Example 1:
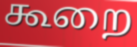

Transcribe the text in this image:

கூறை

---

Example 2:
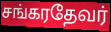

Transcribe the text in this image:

சங்கரதேவர்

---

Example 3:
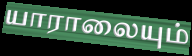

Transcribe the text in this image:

யாராலையும்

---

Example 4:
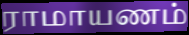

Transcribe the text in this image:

ராமாயணம்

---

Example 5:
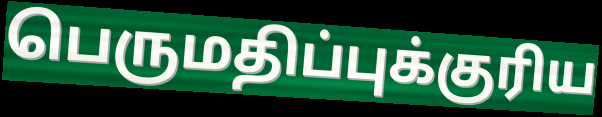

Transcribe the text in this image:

பெருமதிப்புக்குரிய